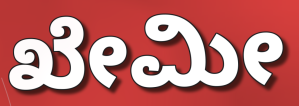
ಖೇಮೀ